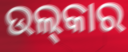
ଉଲ୍‌କାର